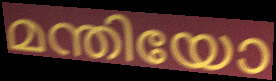
മന്തിയോ